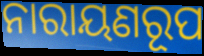
ନାରାୟଣରୂପ